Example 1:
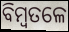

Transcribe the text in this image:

ବିମ୍ବତଳେ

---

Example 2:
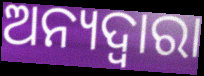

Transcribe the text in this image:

ଅନ୍ୟଦ୍ୱାରା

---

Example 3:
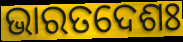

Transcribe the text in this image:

ଭାରତଦେଶଃ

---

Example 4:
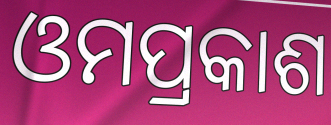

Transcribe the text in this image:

ଓମପ୍ରକାଶ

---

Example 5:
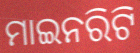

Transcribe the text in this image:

ମାଇନରିଟି